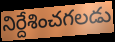
నిర్దేశించగలడు